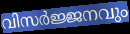
വിസർജ്ജനവും